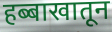
हब्बाखातून